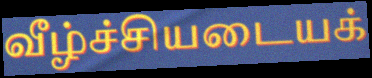
வீழ்ச்சியடையக்